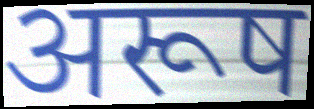
अरूष